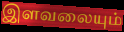
இளவலையும்